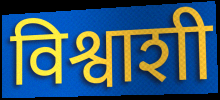
विश्वाशी